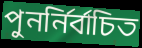
পুনর্নির্বাচিত